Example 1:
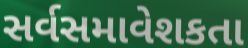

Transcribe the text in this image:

સર્વસમાવેશકતા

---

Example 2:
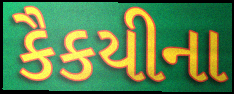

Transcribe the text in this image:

કૈકયીના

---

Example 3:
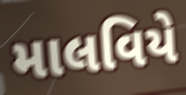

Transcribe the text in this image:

માલવિયે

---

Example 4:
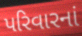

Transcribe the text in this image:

પરિવારનાં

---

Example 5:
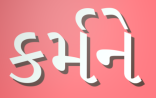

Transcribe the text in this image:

કર્મને